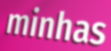
minhas